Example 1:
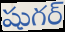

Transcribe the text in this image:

షుగర్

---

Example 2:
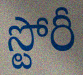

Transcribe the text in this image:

స్టోరీ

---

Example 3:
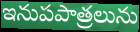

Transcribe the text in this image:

ఇనుపపాత్రలును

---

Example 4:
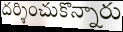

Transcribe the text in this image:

దర్శించుకొన్నారు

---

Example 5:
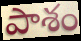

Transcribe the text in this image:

పాశం